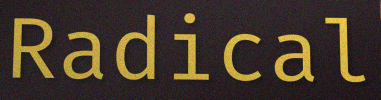
Radical